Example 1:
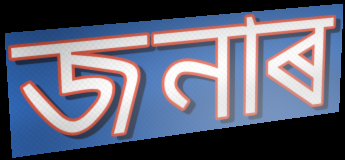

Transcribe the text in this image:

জনাৰ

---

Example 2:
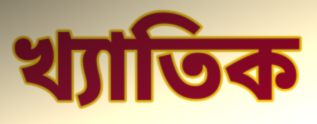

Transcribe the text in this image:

খ্যাতিক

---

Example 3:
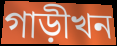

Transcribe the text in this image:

গাড়ীখন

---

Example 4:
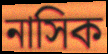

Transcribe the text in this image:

নাসিক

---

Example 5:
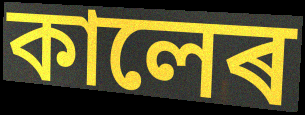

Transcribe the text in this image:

কালেৰ